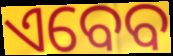
ଏବେବ